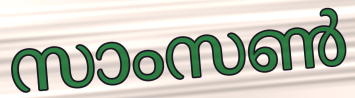
സാംസൺ